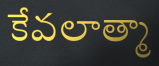
కేవలాత్మా